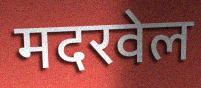
मदरवेल